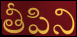
తీపిని